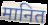
मानित